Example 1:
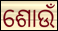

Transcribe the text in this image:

ଶୋଉଁ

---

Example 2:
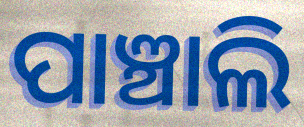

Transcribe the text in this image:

ପାଞ୍ଚାଲି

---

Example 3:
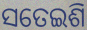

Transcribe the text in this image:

ସତେଇଶି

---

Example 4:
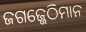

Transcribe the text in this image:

ଜଗଜ୍ଜେଠିମାନ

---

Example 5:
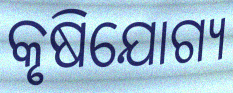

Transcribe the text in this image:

କୃଷିଯୋଗ୍ୟ